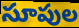
సూపుల